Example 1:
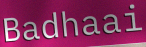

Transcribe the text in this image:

Badhaai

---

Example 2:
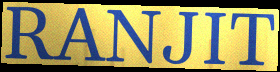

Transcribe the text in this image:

RANJIT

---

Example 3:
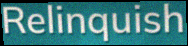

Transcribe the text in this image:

Relinquish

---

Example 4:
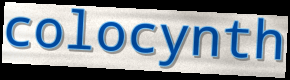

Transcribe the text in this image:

colocynth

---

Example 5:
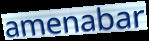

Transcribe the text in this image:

amenabar